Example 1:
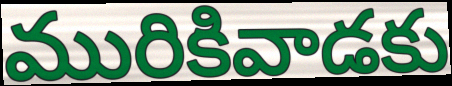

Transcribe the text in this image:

మురికివాడకు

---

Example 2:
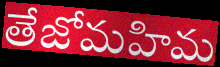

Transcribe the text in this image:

తేజోమహిమ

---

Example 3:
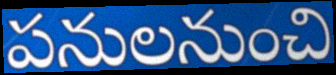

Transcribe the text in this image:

పనులనుంచి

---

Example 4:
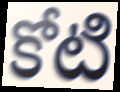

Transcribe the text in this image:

కోటి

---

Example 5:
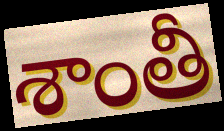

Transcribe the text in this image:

శాంతీ